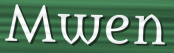
Mwen